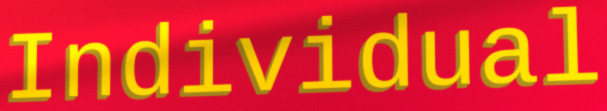
Individual